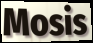
Mosis